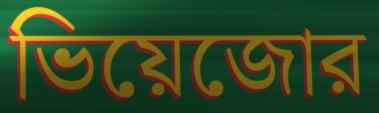
ভিয়েজোর